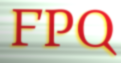
FPQ